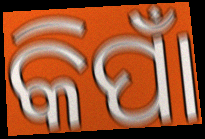
କିପାଁ